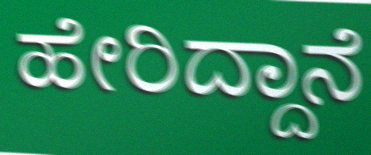
ಹೇರಿದ್ದಾನೆ